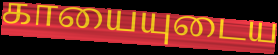
காயையுடைய